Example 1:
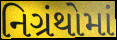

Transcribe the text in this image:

નિગ્રંથોમાં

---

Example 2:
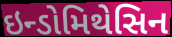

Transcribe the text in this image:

ઇન્ડોમિથેસિન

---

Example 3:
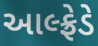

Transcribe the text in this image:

આલ્ફ્રેડે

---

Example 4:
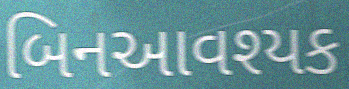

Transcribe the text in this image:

બિનઆવશ્યક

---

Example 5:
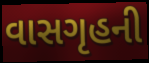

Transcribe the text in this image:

વાસગૃહની